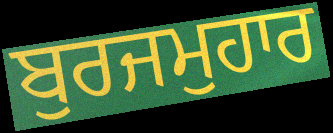
ਬੁਰਜਮੁਹਾਰ